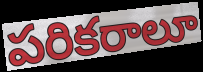
పరికరాలూ